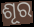
ଶୂର